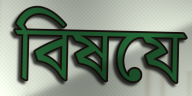
বিষযে